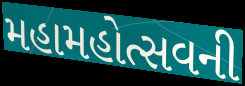
મહામહોત્સવની